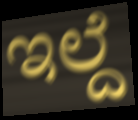
ಇಲ್ದೆ